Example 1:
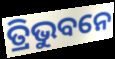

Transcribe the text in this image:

ତ୍ରିଭୁବନେ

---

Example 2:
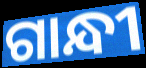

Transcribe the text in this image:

ଗାନ୍ଧୀ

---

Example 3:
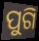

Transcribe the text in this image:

ପୁଗି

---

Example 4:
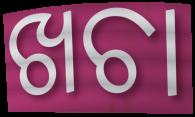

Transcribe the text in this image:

ଖଚା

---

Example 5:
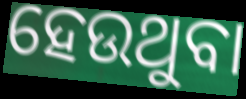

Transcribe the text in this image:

ହେଉଥୁବା